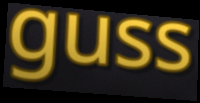
guss